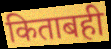
किताबही